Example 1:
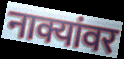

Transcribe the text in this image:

नाक्यांवर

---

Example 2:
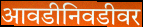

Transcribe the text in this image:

आवडीनिवडीवर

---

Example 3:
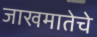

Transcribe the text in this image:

जाखमातेचे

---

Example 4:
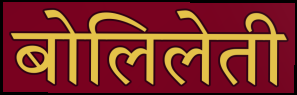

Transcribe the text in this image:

बोलिलेती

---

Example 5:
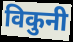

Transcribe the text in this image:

विकुनी